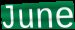
June